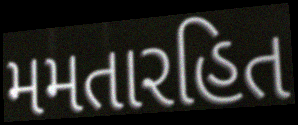
મમતારહિત